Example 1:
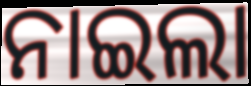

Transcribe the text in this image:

ନାଇଲା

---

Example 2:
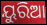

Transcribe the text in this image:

ୟୁରିଆ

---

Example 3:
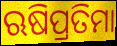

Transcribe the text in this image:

ଋଷିପ୍ରତିମା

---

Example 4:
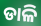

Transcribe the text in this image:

ଡାଳି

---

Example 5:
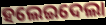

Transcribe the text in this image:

ହଲେଇଦେଲା